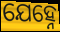
ଯେହ୍ନେ